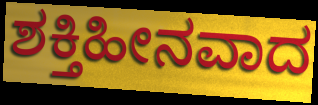
ಶಕ್ತಿಹೀನವಾದ